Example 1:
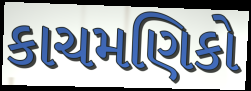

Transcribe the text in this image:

કાચમણિકો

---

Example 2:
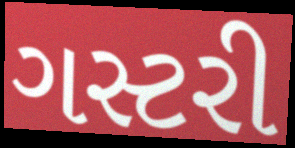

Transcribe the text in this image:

ગસ્ટરી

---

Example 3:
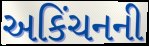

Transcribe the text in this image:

અકિંચનની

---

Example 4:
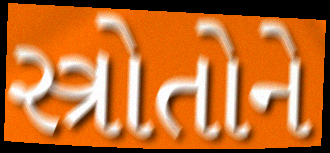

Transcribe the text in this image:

સ્ત્રોતોને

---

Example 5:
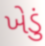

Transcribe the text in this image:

ખેડું